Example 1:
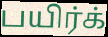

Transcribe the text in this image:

பயிர்க்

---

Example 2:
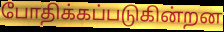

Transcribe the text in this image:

போதிக்கப்படுகின்றன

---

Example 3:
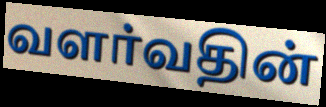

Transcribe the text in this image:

வளர்வதின்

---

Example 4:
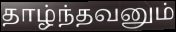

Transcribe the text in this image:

தாழ்ந்தவனும்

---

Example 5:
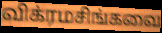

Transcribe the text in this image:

விக்ரமசிங்கவை